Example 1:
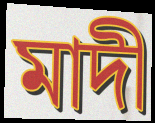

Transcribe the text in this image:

মাদী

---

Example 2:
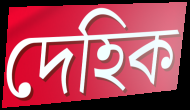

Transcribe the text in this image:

দেহিক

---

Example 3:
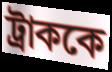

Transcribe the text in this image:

ট্রাককে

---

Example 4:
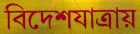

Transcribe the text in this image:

বিদেশযাত্রায়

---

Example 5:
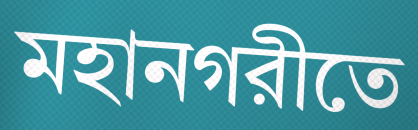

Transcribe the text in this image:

মহানগরীতে